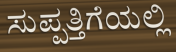
ಸುಪ್ಪತ್ತಿಗೆಯಲ್ಲಿ